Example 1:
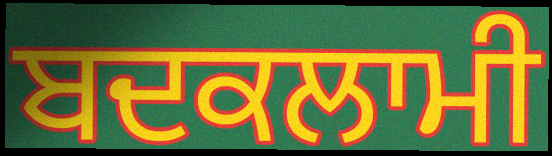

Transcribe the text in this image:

ਬਦਕਲਾਮੀ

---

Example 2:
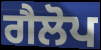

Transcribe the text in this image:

ਗੈਲੋਪ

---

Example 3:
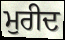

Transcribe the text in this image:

ਮੁਰੀਦ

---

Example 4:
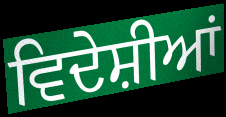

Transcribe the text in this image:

ਵਿਦੇਸ਼ੀਆਂ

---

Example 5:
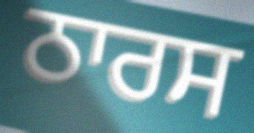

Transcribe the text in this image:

ਠਾਰਸ